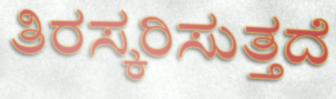
ತಿರಸ್ಕರಿಸುತ್ತದೆ